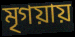
মৃগয়ায়